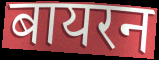
बायरन